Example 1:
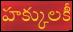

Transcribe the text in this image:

హక్కులకీ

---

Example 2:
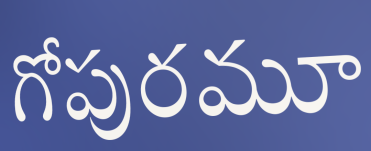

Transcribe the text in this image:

గోపురమూ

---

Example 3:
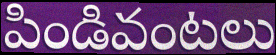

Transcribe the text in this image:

పిండివంటలు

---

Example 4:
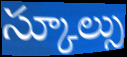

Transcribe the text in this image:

స్కూల్సు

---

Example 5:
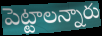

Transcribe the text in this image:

పెట్టాలన్నారు